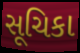
સૂચિકા